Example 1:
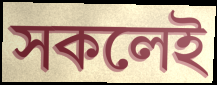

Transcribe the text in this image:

সকলেই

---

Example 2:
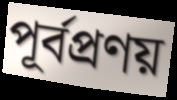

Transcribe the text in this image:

পূর্বপ্রণয়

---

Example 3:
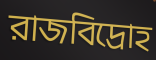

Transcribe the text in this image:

রাজবিদ্রোহ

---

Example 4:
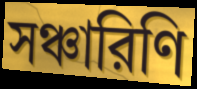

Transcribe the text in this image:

সঞ্চারিণি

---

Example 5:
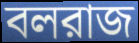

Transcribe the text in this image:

বলরাজ